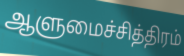
ஆளுமைச்சித்திரம்